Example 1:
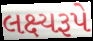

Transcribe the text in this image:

લક્ષ્યરૂપે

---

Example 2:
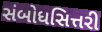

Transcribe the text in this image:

સંબોધસિત્તરી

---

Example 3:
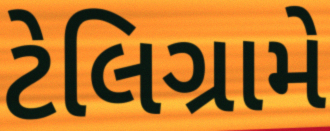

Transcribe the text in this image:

ટેલિગ્રામે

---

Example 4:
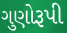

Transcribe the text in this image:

ગુણોરૂપી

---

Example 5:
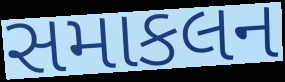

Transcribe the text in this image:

સમાકલન